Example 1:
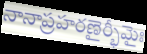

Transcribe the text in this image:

నానాప్రహరణైర్భీమైః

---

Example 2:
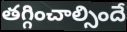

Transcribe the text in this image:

తగ్గించాల్సిందే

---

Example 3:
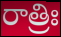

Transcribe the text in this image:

రాత్రిః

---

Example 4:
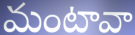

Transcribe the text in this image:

మంటావా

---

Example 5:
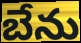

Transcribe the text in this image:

బేను